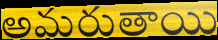
అమరుతాయి